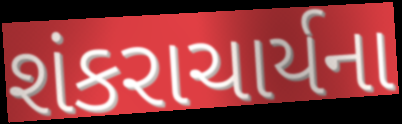
શંકરાચાર્યના